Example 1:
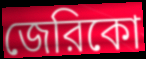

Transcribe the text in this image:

জেরিকো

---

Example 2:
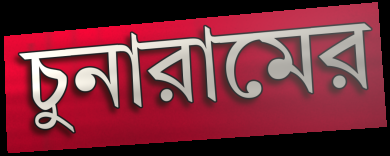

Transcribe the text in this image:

চুনারামের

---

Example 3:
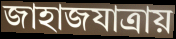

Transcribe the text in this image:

জাহাজযাত্রায়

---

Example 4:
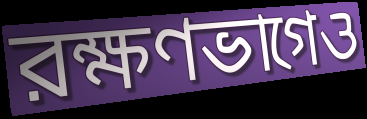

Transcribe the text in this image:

রক্ষণভাগেও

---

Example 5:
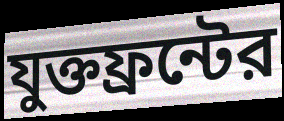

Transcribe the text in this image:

যুক্তফ্রন্টের